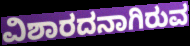
ವಿಶಾರದನಾಗಿರುವ